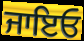
ਜਾਇਓ